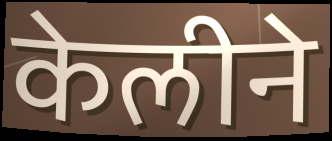
केलीने